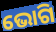
ଭୋଗି